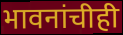
भावनांचीही